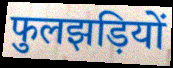
फुलझड़ियों